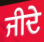
ਜੀਦੇ